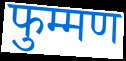
फुम्मण